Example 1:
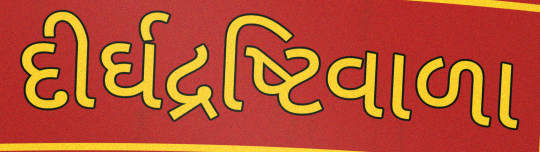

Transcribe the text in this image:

દીર્ઘદ્રષ્ટિવાળા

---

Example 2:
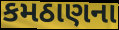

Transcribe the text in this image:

કમઠાણના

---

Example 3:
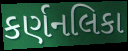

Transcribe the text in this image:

કર્ણનલિકા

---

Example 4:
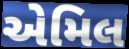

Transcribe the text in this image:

એમિલ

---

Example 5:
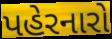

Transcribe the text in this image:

પહેરનારો